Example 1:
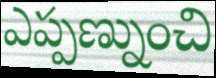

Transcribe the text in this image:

ఎప్పణ్నుంచి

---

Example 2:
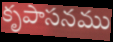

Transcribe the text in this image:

కృపాసనము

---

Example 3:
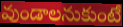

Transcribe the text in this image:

వుండాలనుకుంటే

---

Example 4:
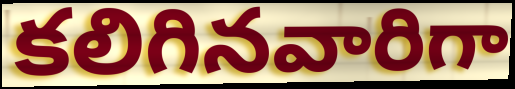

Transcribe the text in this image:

కలిగినవారిగా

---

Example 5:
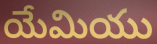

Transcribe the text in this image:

యేమియు